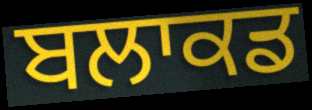
ਬਲਾਕਡ